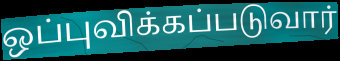
ஒப்புவிக்கப்படுவார்